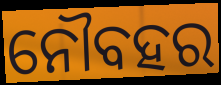
ନୌବହର